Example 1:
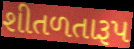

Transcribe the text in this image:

શીતળતારૂપ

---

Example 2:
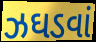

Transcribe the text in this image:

ઝઘડવાં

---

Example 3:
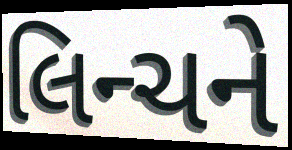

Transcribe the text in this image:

લિન્ચને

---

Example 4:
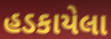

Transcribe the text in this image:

હડકાયેલા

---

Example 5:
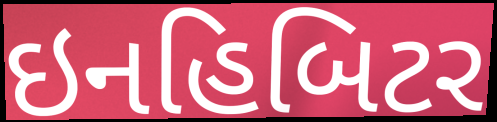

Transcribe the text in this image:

ઇનહિબિટર